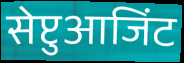
सेप्टुआजिंट